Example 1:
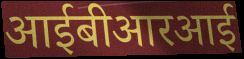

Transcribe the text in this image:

आईबीआरआई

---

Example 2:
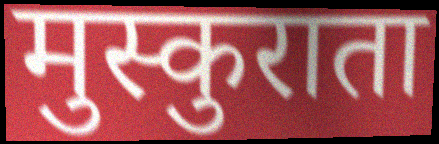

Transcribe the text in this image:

मुस्कुराता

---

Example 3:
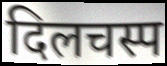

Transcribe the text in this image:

दिलचस्प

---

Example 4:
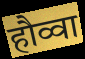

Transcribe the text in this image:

हौव्वा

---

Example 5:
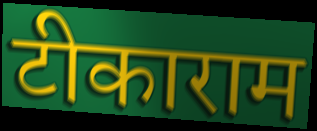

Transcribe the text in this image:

टीकाराम